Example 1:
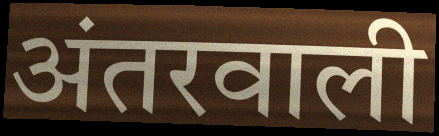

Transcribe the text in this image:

अंतरवाली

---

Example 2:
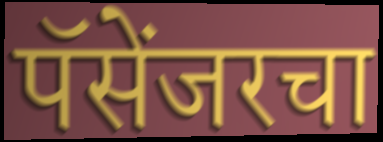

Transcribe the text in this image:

पॅसेंजरचा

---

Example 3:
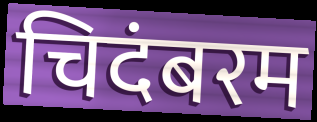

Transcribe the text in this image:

चिदंबरम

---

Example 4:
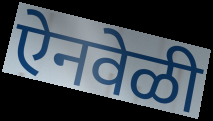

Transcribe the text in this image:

ऐनवेळी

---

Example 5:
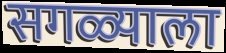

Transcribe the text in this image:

सगळ्याला